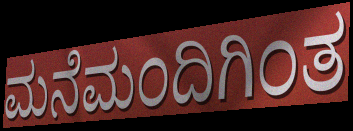
ಮನೆಮಂದಿಗಿಂತ